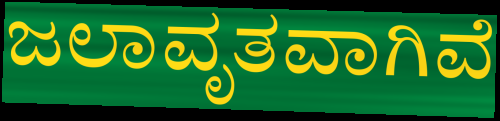
ಜಲಾವೃತವಾಗಿವೆ